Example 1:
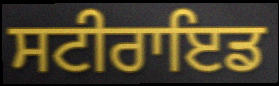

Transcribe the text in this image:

ਸਟੀਰਾਇਡ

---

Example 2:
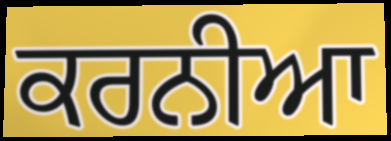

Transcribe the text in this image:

ਕਰਨੀਆ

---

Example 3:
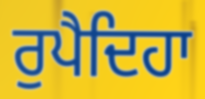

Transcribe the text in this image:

ਰੁਪੈਦਿਹਾ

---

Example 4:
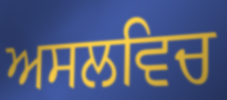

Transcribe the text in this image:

ਅਸਲਵਿਚ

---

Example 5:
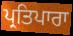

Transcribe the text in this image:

ਪ੍ਰਤਿਪਾਰਾ